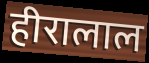
हीरालाल